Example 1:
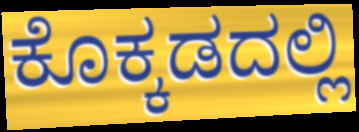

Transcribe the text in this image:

ಕೊಕ್ಕಡದಲ್ಲಿ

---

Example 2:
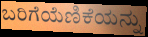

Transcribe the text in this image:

ಬರಿಗೆಯೆಣಿಕೆಯನ್ನು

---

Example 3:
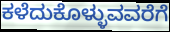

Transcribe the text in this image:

ಕಳೆದುಕೊಳ್ಳುವವರೆಗೆ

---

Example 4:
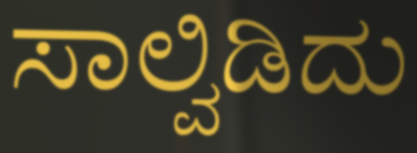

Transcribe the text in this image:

ಸಾಲ್ವಿಡಿದು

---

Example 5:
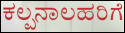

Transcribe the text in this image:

ಕಲ್ಪನಾಲಹರಿಗೆ